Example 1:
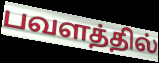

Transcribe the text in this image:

பவளத்தில்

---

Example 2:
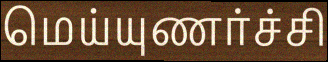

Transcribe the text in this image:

மெய்யுணர்ச்சி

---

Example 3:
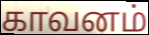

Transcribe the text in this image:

காவனம்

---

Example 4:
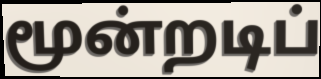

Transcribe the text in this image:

மூன்றடிப்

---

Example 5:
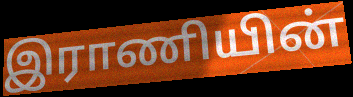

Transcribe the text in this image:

இராணியின்